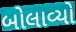
બોલાવ્યો